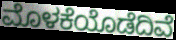
ಮೊಳಕೆಯೊಡೆದಿವೆ